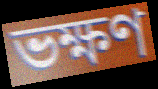
ভক্ষণ